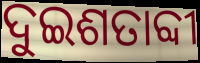
ଦୁଇଶତାବ୍ଦୀ